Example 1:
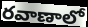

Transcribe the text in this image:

రవాణాలో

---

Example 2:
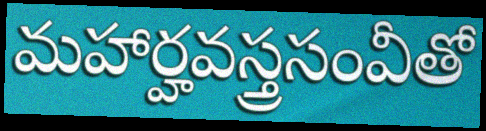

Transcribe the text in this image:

మహార్హవస్త్రసంవీతో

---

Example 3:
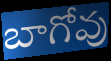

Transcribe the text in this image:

బాగోవు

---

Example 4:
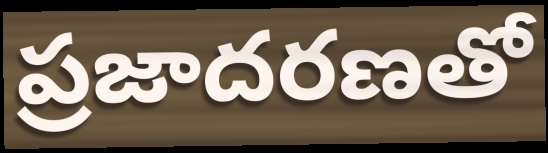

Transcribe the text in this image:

ప్రజాదరణతో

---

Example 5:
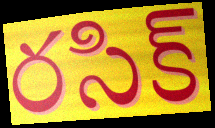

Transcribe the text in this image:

రసిక్